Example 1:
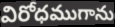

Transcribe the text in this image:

విరోధముగాను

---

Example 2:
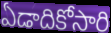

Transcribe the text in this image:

ఏడాదికోసారి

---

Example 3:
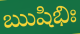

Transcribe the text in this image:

ఋషిభిః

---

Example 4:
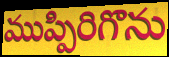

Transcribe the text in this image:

ముప్పిరిగొను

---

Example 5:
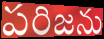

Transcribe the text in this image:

పరిజను